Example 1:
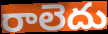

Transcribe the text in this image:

రాలెదు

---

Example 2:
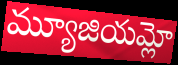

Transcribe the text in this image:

మ్యూజియమ్లో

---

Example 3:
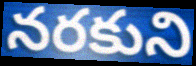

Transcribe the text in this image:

నరకుని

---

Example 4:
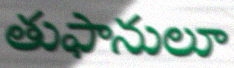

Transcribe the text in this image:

తుఫానులూ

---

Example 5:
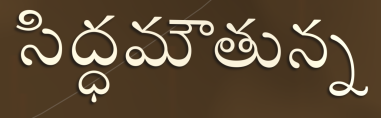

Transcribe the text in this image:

సిద్ధమౌతున్న